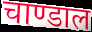
चाण्डाल